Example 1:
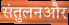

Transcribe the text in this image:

संतुलनऔर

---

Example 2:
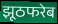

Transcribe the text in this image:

झूठफरेब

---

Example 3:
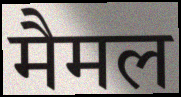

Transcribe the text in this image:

मैमल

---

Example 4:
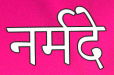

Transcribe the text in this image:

नर्मदे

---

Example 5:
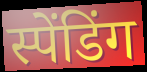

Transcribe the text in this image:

स्पेंडिंग